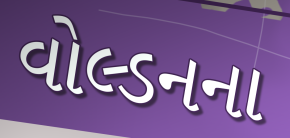
વોલ્ડનના